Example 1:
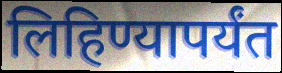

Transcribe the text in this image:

लिहिण्यापर्यंत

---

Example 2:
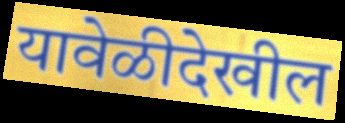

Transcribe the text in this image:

यावेळीदेखील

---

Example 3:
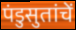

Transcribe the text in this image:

पंडुसुतांचें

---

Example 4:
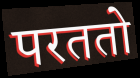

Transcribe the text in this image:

परततो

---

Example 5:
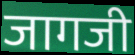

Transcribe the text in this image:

जागजी